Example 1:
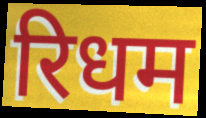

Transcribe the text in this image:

रिधम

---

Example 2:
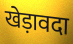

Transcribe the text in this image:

खेड़ावदा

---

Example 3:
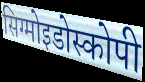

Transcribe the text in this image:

सिग्मोइडोस्कोपी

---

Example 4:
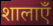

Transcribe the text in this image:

शालाएँ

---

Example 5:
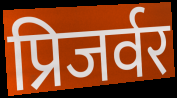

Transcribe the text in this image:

प्रिजर्वर